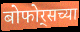
बोफोर्सच्या